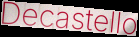
Decastello